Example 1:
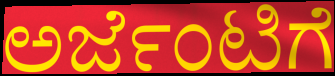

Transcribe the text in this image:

ಅರ್ಜೆಂಟಿಗೆ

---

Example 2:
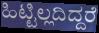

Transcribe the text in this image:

ಹಿಟ್ಟಿಲ್ಲದಿದ್ದರೆ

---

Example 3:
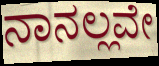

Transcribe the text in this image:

ನಾನಲ್ಲವೇ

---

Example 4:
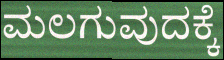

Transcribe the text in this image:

ಮಲಗುವುದಕ್ಕೆ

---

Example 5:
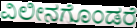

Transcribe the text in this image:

ವಿಲೀನಗೊಂಡರೆ